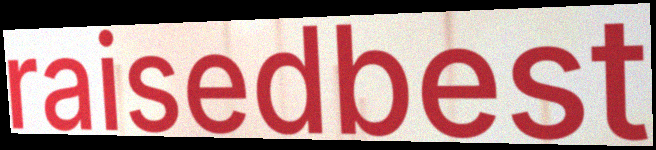
raisedbest